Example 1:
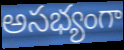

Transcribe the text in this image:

అసభ్యంగా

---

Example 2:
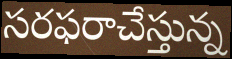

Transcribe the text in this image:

సరఫరాచేస్తున్న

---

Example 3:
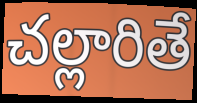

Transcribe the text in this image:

చల్లారితే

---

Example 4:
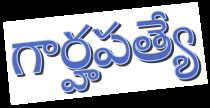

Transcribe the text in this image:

గార్హపత్యే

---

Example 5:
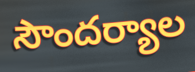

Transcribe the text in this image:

సౌందర్యాల